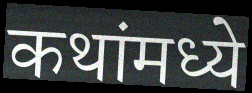
कथांमध्ये